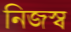
নিজস্ব